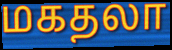
மகதலா